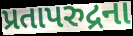
પ્રતાપરુદ્રના